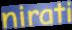
nirati